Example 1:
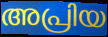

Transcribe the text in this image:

അപ്രിയ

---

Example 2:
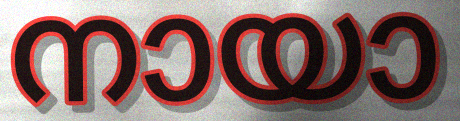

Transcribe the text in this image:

നായാ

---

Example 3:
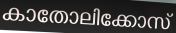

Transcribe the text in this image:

കാതോലിക്കോസ്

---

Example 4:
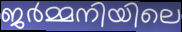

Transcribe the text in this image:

ജർമ്മനിയിലെ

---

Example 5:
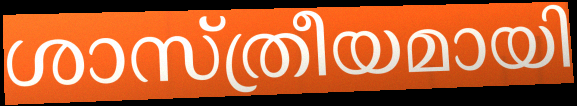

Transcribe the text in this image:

ശാസ്ത്രീയമായി